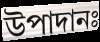
উপাদানঃ